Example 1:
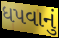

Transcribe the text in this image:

ધપવાનું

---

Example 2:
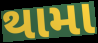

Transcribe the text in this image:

થામા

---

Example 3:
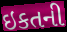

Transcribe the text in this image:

ઇકતની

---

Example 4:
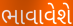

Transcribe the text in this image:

ભાવાવેશે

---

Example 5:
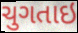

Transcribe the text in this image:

ચુગતાઇ